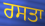
ਰਸਤਾ